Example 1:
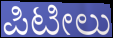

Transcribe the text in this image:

ಪಿಟೀಲು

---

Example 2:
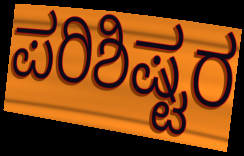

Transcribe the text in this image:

ಪರಿಶಿಷ್ಟರ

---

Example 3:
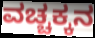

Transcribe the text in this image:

ವಚ್ಚಕ್ಕನ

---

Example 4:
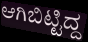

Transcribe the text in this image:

ಆಗಿಬಿಟ್ಟಿದ್ದ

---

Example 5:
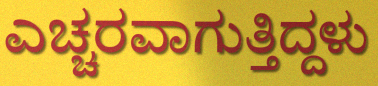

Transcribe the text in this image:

ಎಚ್ಚರವಾಗುತ್ತಿದ್ದಳು